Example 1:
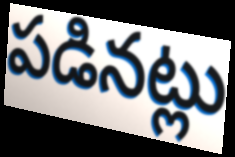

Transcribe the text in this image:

పడినట్లు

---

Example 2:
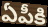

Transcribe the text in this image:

ఏపీకి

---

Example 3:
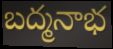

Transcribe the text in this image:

బద్మనాభ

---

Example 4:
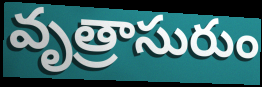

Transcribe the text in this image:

వృత్రాసురుం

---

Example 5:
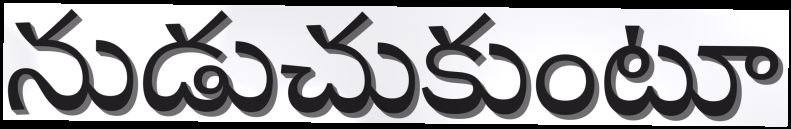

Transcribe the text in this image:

నుడుచుకుంటూ